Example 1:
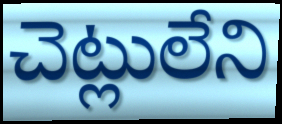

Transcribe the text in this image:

చెట్లులేని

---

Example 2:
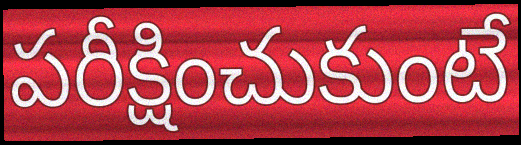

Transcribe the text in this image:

పరీక్షించుకుంటే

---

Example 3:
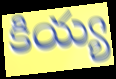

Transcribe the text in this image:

కియ్య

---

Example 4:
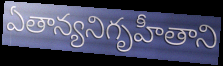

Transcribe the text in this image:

ఏతాన్యనిగృహీతాని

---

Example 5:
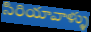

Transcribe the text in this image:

సిరియావాళ్ళు